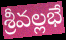
శ్రీవల్లభే